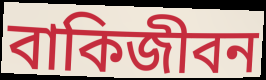
বাকিজীবন